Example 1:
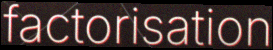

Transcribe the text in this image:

factorisation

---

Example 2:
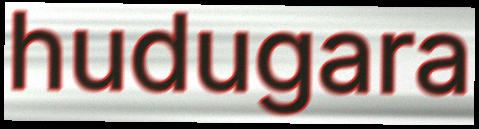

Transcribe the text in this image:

hudugara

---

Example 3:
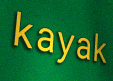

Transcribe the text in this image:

kayak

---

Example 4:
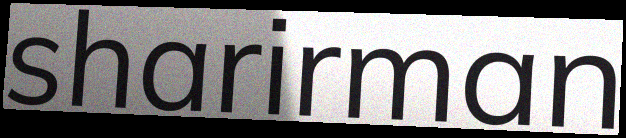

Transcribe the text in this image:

sharirman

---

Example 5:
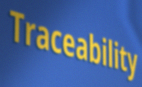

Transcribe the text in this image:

Traceability